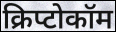
क्रिप्टोकॉम